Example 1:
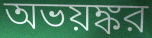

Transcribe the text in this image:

অভয়ঙ্কর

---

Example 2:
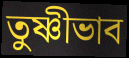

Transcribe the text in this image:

তুষ্ণীভাব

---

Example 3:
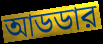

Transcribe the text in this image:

আডডার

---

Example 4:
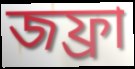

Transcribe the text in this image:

জফ্রা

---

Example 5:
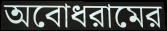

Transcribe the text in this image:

অবোধরামের